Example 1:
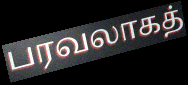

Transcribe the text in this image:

பரவலாகத்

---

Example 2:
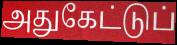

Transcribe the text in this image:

அதுகேட்டுப்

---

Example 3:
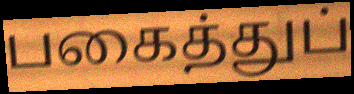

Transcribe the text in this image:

பகைத்துப்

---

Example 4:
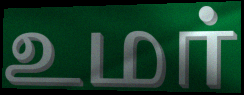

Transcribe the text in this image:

உமர்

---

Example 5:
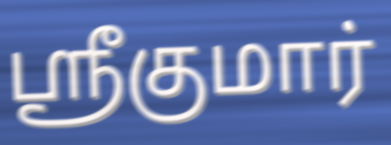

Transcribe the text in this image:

ஸ்ரீகுமார்